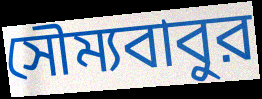
সৌম্যবাবুর